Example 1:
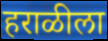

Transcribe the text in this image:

हराळीला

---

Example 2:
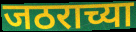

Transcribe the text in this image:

जठराच्या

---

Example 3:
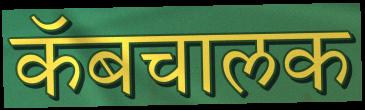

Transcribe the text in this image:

कॅबचालक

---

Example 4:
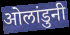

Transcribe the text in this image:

ओलांडुनी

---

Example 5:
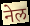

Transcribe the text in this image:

नेल